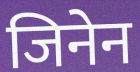
जिनेन